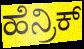
ಹೆನ್ರಿಕ್